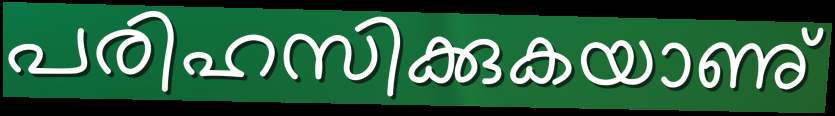
പരിഹസിക്കുകയാണു്